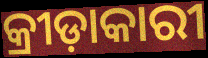
କ୍ରୀଡ଼ାକାରୀ